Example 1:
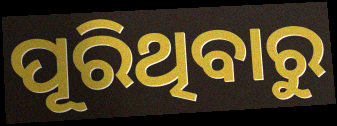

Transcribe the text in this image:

ପୂରିଥିବାରୁ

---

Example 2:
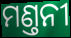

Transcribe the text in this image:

ମଣ୍ତନୀ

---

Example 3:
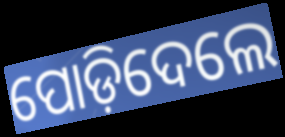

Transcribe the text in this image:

ପୋଡ଼ିଦେଲେ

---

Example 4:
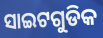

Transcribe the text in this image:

ସାଇଟଗୁଡିକ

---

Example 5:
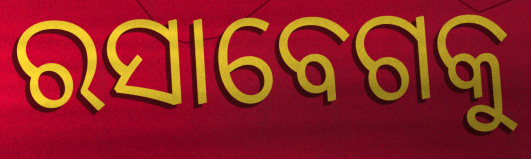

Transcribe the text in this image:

ରସାବେଗକୁ